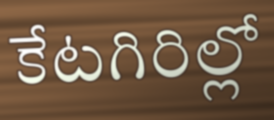
కేటగిరిల్లో